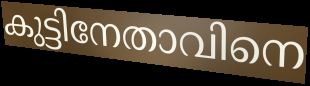
കുട്ടിനേതാവിനെ